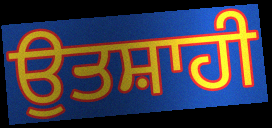
ਉਤਸ਼ਾਹੀ